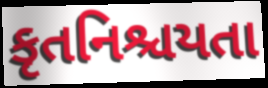
કૃતનિશ્ચયતા